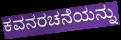
ಕವನರಚನೆಯನ್ನು